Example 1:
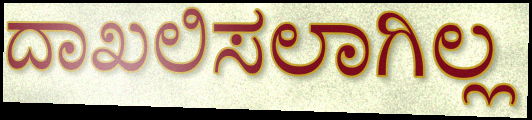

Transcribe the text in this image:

ದಾಖಲಿಸಲಾಗಿಲ್ಲ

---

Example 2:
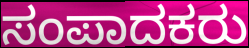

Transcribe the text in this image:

ಸಂಪಾದಕರು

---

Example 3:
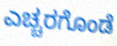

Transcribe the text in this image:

ಎಚ್ಚರಗೊಂಡೆ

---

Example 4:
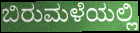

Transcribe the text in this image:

ಬಿರುಮಳೆಯಲ್ಲಿ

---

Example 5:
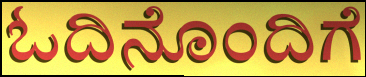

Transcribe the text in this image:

ಓದಿನೊಂದಿಗೆ